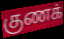
குணக்